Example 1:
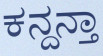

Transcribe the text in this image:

ಕನ್ದನ್ತಾ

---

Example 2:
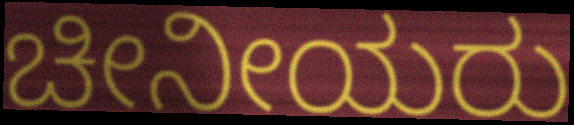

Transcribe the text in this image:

ಚೀನೀಯರು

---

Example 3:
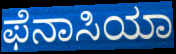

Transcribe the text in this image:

ಫೆನಾಸಿಯಾ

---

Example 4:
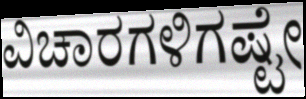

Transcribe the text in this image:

ವಿಚಾರಗಳಿಗಷ್ಟೇ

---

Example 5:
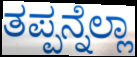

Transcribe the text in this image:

ತಪ್ಪನ್ನೆಲ್ಲಾ